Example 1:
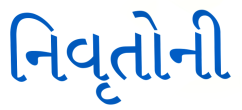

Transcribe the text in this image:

નિવૃતોની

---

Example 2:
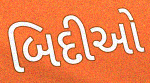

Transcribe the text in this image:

બિદીઓ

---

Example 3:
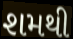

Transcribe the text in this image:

શમથી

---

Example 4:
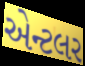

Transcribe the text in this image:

એન્ટલર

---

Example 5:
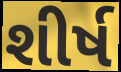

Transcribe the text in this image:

શીર્ષ